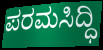
ಪರಮಸಿದ್ಧಿ